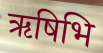
ऋषिभि